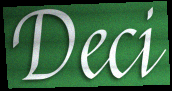
Deci